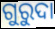
ଗୁରୁଦା